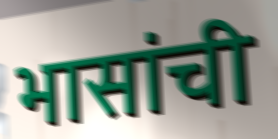
भासांची